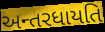
અન્તરધાયતિ